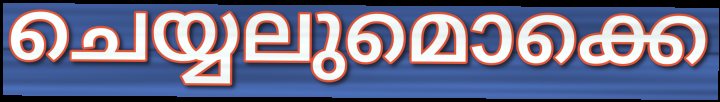
ചെയ്യലുമൊക്കെ